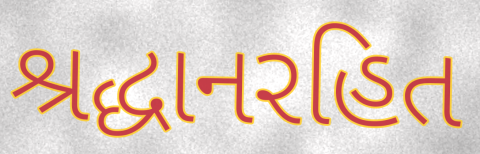
શ્રદ્ધાનરહિત